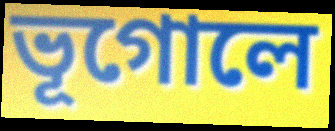
ভূগোলে